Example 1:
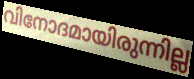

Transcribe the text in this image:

വിനോദമായിരുന്നില്ല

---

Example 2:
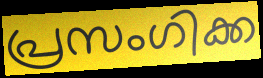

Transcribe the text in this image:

പ്രസംഗിക്ക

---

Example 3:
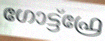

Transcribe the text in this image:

ഗോട്ട്ഫ്രേ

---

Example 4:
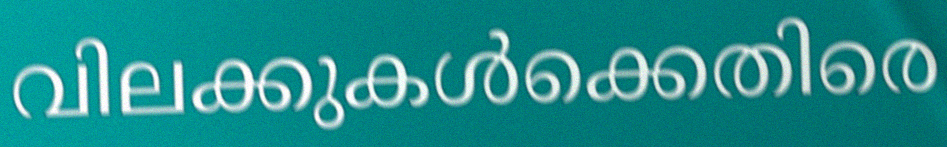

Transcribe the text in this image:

വിലക്കുകൾക്കെതിരെ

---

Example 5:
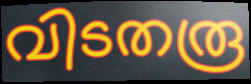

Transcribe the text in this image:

വിടതരൂ